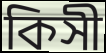
কিসী